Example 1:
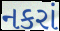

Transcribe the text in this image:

નકરાં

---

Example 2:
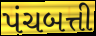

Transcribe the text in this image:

પંચબત્તી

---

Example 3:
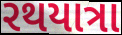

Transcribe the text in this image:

રથયાત્રા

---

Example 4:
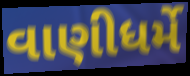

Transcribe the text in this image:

વાણીધર્મે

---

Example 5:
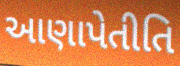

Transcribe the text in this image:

આણાપેતીતિ